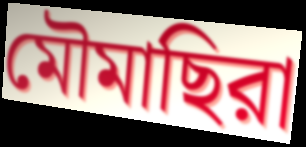
মৌমাছিরা